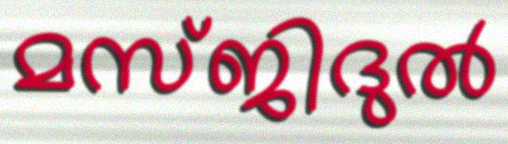
മസ്ജിദുൽ